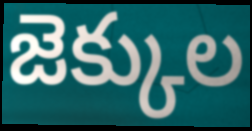
జెక్కుల